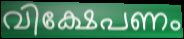
വിക്ഷേപണം